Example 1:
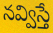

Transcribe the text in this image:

నవ్విస్తే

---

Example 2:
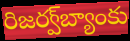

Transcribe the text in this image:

రిజర్వ్‌బ్యాంకు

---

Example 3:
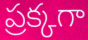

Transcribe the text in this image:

ప్రక్కగా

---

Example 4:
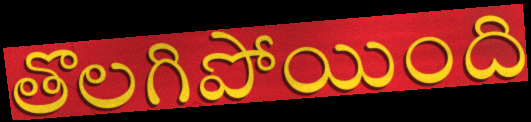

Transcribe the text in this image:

తొలగిపోయింది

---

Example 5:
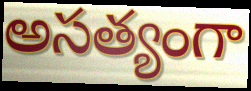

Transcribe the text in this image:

అసత్యంగా